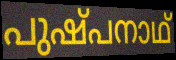
പുഷ്പനാഥ്